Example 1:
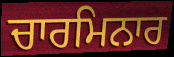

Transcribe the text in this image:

ਚਾਰਮਿਨਾਰ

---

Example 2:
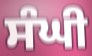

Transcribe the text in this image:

ਸੰਘੀ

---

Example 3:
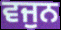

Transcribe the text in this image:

ਵਜੁਨ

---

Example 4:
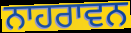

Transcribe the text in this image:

ਨਾਹਰਾਵਨ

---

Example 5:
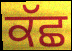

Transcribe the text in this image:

ਕੱਛ